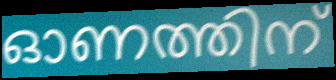
ഓണത്തിന്